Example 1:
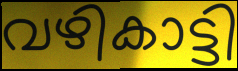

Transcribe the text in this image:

വഴികാട്ടി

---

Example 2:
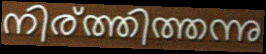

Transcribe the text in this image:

നിര്ത്തിത്തന്നു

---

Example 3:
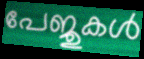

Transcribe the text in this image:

പേജുകൾ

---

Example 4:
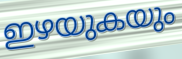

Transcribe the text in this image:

ഇഴയുകയും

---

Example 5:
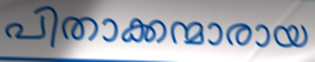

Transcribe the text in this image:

പിതാക്കന്മാരായ